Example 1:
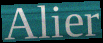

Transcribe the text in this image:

Alier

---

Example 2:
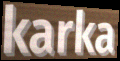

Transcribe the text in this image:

karka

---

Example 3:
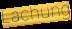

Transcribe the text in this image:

Lachung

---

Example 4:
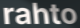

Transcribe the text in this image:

rahto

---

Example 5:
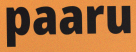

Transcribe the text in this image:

paaru